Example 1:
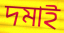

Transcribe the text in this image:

দমাই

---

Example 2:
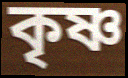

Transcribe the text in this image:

কৃষ্ণ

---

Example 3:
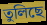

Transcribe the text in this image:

তুলিছে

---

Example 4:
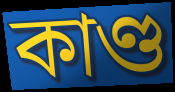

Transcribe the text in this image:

কাণ্ড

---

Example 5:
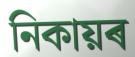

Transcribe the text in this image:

নিকায়ৰ